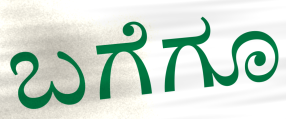
ಬಗೆಗೂ